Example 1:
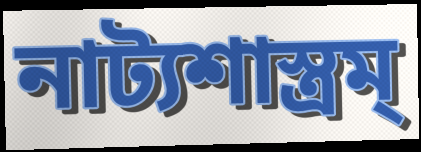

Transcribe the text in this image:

নাট্যশাস্ত্রম্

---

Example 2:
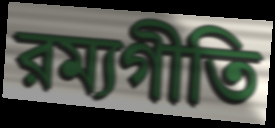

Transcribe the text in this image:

রম্যগীতি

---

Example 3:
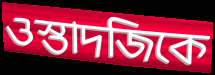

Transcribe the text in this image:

ওস্তাদজিকে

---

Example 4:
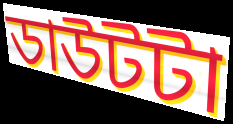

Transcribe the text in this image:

ডাউটটা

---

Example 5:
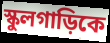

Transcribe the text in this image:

স্কুলগাড়িকে